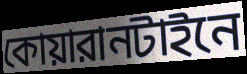
কোয়ারানটাইনে